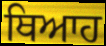
ਥਿਆਹ